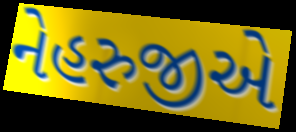
નેહરુજીએ